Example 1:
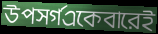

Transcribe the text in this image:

উপসর্গএকেবারেই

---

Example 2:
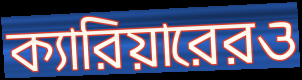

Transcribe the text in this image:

ক্যারিয়ারেরও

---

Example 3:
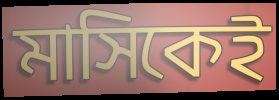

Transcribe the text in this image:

মাসিকেই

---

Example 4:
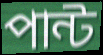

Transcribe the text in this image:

পান্ট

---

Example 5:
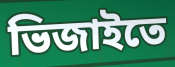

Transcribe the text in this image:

ভিজাইতে